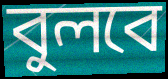
বুলবে